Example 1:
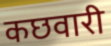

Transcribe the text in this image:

कछवारी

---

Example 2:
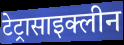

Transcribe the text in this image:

टेट्रासाइक्लीन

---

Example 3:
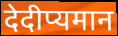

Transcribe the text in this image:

देदीप्यमान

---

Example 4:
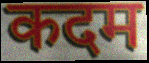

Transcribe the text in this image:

कदम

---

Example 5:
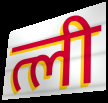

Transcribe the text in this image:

त्ली